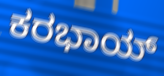
ಕರಭಾಯ್